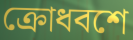
ক্রোধবশে